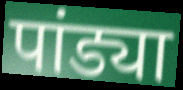
पांड्या